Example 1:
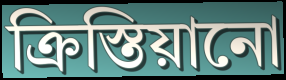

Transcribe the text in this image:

ক্রিস্তিয়ানো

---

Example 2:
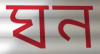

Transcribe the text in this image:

ঘন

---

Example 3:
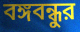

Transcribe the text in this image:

বঙ্গবন্ধুর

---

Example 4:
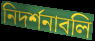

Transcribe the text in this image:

নিদর্শনাবলি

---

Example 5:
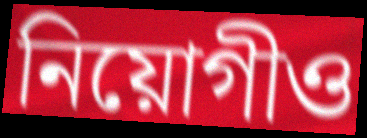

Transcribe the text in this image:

নিয়োগীও